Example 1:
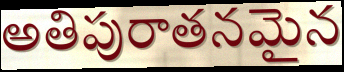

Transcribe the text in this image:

అతిపురాతనమైన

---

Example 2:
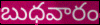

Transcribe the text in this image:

బుధవారం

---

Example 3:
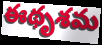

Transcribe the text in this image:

ఈథృశమ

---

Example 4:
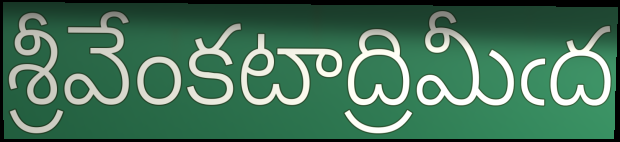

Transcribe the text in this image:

శ్రీవేంకటాద్రిమీఁద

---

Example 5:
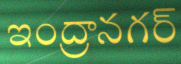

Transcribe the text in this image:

ఇంద్రానగర్